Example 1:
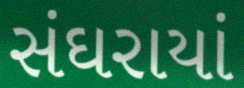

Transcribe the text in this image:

સંઘરાયાં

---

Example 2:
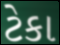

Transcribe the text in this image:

ટેકા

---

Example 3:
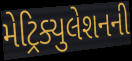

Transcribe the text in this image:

મેટ્રિક્યુલેશનની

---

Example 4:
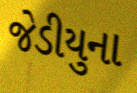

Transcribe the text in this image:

જેડીયુના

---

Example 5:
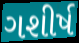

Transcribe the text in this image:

ગશીર્ષ